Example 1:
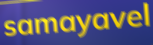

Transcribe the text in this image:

samayavel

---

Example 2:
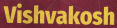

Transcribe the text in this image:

Vishvakosh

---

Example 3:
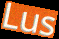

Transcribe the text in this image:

Lus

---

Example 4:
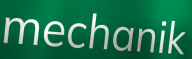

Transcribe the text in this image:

mechanik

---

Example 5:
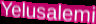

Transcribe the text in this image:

Yelusalemi